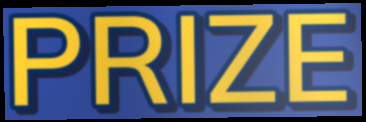
PRIZE